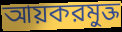
আয়করমুক্ত